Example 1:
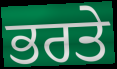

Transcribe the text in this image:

ਭਰਤੇ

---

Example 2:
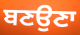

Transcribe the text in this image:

ਬਣਉਣਾ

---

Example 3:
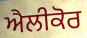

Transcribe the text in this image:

ਐਲੀਕੋਰ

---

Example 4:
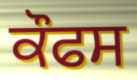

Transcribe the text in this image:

ਕੌਫਸ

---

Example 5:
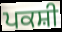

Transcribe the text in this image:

ਪਕਸ਼ੀ